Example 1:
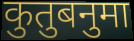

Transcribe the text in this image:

कुतुबनुमा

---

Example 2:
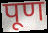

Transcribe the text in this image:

पूण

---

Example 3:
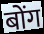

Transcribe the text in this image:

बोंग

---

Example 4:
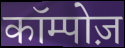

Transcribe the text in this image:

कॉम्पोज़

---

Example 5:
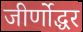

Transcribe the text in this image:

जीर्णोद्धर